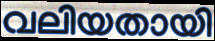
വലിയതായി